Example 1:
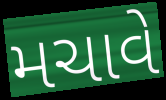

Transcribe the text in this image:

મચાવે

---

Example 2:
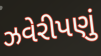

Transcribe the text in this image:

ઝવેરીપણું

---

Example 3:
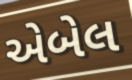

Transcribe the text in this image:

એબેલ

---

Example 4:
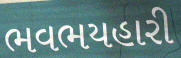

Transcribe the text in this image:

ભવભયહારી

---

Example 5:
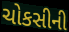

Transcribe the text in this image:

ચોકસીની